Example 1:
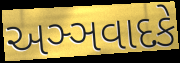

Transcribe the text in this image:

અઞ્ઞવાદકે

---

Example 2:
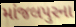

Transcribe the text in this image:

માંજલપુરના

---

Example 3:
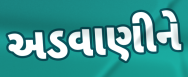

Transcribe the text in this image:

અડવાણીને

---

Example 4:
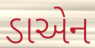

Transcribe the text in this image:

ડાએન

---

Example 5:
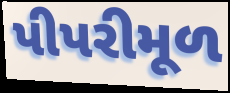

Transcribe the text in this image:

પીપરીમૂળ